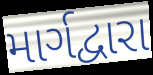
માર્ગદ્વારા